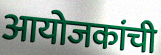
आयोजकांची